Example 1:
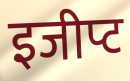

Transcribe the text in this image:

इजीप्ट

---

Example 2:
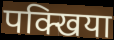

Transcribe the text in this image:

पक्खिया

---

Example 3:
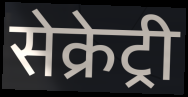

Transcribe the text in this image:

सेक्रेट्री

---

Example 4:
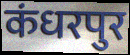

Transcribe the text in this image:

कंधरपुर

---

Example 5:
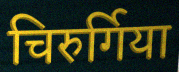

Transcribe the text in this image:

चिरुर्गिया